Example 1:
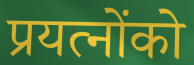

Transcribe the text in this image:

प्रयत्नोंको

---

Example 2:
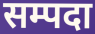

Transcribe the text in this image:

सम्पदा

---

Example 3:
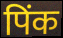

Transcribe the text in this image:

पिंक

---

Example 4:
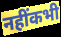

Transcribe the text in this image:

नहींकभी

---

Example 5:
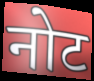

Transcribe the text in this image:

नोट